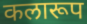
कलारूप